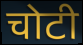
चोटी